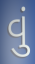
વું